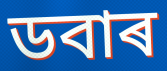
ডবাৰ